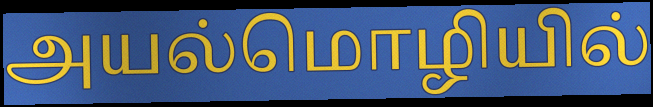
அயல்மொழியில்